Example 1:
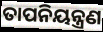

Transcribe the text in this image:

ତାପନିୟନ୍ତ୍ରଣ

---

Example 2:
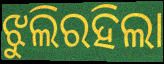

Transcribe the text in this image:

ଝୁଲିରହିଲା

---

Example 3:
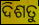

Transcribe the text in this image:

ଦିଶତୁ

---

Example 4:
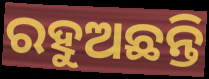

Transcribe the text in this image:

ରହୁଅଛନ୍ତି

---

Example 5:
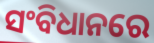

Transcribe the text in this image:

ସଂବିଧାନରେ